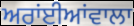
ਅਰਾਂਈਆਂਵਾਲਾ